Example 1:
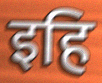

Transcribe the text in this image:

इहि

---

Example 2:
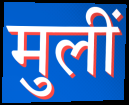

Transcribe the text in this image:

मुलीं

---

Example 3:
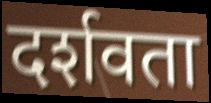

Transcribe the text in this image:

दर्शवता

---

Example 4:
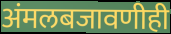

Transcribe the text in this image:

अंमलबजावणीही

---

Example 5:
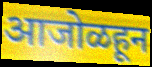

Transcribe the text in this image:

आजोळहून